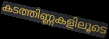
കടത്തിണ്ണകളിലൂടെ